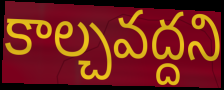
కాల్చవద్దని